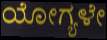
ಯೋಗ್ಯಳೇ